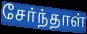
சேர்ந்தாள்